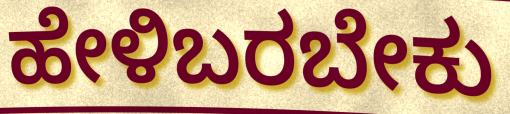
ಹೇಳಿಬರಬೇಕು